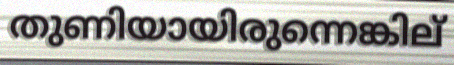
തുണിയായിരുന്നെങ്കില്